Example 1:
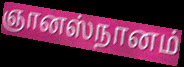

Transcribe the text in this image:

ஞானஸ்நானம்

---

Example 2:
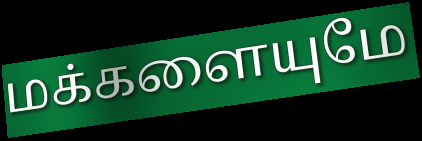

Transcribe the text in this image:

மக்களையுமே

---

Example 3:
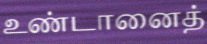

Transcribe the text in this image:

உண்டானைத்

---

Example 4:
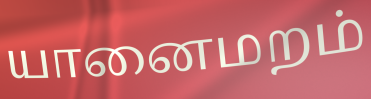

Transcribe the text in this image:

யானைமறம்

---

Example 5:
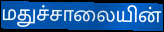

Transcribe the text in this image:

மதுச்சாலையின்